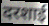
दरशाई